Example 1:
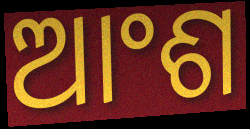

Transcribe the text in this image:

ଆଂଶ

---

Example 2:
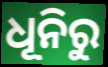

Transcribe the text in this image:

ଧୂନିରୁ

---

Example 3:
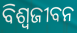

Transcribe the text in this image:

ବିଶ୍ଵଜୀବନ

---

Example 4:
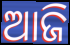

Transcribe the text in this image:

ଆଜି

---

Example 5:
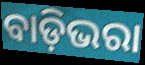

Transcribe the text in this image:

ବାଡ଼ିଭରା